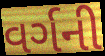
વર્ગની